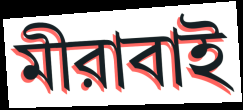
মীরাবাই